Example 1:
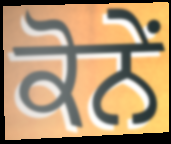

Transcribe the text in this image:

ਕੋਨੇਂ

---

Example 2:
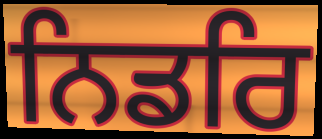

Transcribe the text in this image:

ਨਿਡਰਿ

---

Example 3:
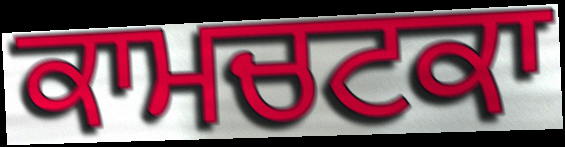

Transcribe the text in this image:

ਕਾਮਚਟਕਾ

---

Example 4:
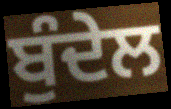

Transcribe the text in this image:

ਬੁੰਦੇਲ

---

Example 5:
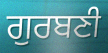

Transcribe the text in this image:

ਗੁਰਬਣੀ